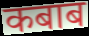
कबाब